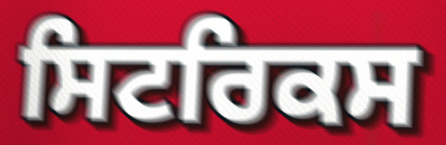
ਸਿਟਰਿਕਸ